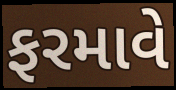
ફરમાવે